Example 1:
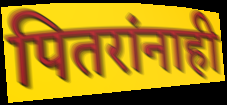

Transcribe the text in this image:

पितरांनाही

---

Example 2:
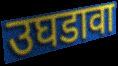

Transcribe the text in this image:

उघडावा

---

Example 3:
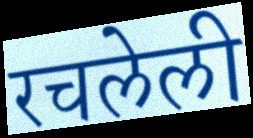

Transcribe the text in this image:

रचलेली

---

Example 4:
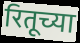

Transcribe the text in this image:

रितूच्या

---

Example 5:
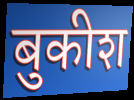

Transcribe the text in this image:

बुकीश